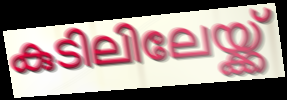
കുടിലിലേയ്ക്ക്